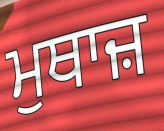
ਮੁਥਾਜ਼